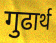
गुढार्थ